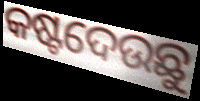
କଷ୍ଟଦେଉଛୁ